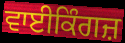
ਵਾਈਕਿੰਗਜ਼